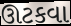
ઊટકવા